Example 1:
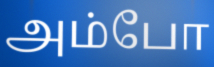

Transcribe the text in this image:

அம்போ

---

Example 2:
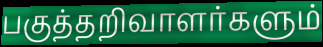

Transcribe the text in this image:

பகுத்தறிவாளர்களும்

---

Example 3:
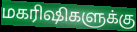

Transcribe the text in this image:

மகரிஷிகளுக்கு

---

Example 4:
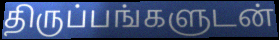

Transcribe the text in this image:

திருப்பங்களுடன்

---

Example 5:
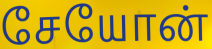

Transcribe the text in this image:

சேயோன்